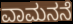
ವಾಮನನೆ